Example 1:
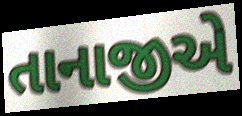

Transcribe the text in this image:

તાનાજીએ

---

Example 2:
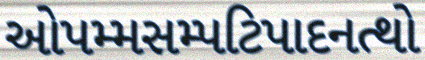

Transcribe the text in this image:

ઓપમ્મસમ્પટિપાદનત્થો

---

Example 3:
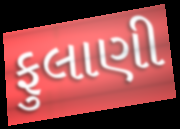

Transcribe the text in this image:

ફુલાણી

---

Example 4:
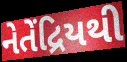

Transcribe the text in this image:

નેતેંદ્રિયથી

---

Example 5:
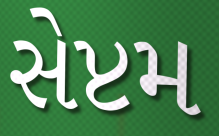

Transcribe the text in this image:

સેપ્ટમ